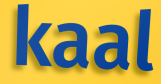
kaal